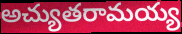
అచ్యుతరామయ్య